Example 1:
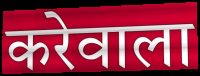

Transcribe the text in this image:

करेवाला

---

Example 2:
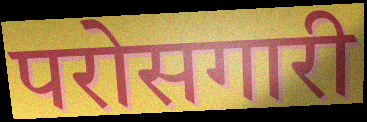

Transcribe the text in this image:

परोसगारी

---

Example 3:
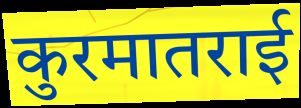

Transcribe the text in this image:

कुरमातराई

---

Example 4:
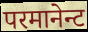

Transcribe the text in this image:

परमानेन्ट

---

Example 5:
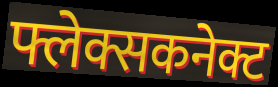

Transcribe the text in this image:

फ्लेक्सकनेक्ट